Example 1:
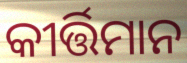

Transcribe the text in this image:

କୀର୍ତ୍ତିମାନ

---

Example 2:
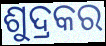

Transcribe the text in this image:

ଶୁଦ୍ରକର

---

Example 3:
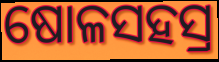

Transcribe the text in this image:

ଷୋଳସହସ୍ର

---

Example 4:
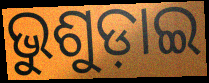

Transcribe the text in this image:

ଭୁଶୁଡ଼ାଇ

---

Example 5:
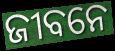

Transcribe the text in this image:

ଜୀବନେ